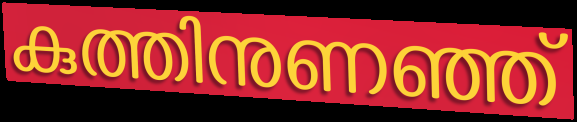
കുത്തിനുണഞ്ഞ്